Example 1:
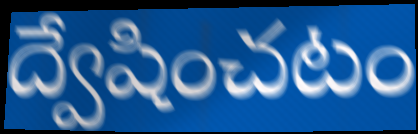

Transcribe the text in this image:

ద్వేషించటం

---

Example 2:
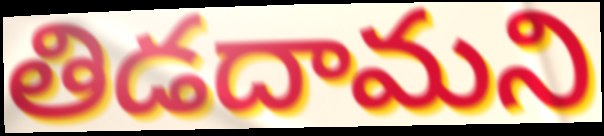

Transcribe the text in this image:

తిడదామని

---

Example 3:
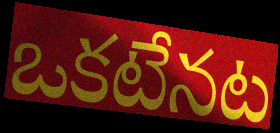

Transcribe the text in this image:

ఒకటేనట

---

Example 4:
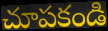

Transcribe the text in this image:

చూపకండి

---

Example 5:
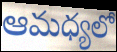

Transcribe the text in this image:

ఆమధ్యలో